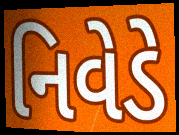
નિવેડે